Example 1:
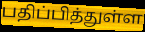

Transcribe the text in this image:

பதிப்பித்துள்ள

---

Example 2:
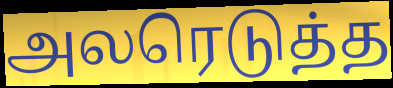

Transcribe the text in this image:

அலரெடுத்த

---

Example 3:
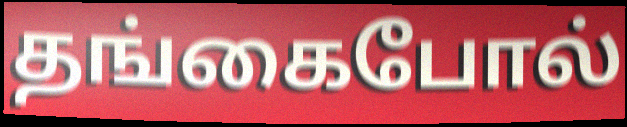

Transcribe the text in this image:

தங்கைபோல்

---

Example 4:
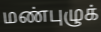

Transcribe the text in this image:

மண்புழுக்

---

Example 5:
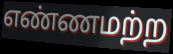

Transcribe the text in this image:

எண்ணமற்ற